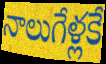
నాలుగేళ్లకే